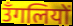
उँगलियों